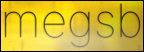
megsb